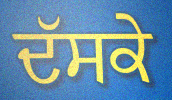
ਦੱਸਕੇ